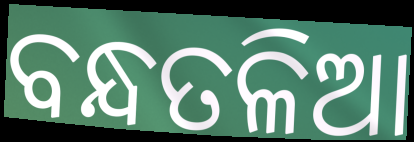
ବନ୍ଧତଳିଆ